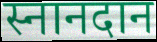
स्नानदान